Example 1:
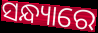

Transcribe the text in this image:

ସନ୍ଧ୍ୟାରେ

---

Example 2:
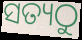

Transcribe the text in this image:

ସତ୍ୟଠୁ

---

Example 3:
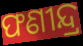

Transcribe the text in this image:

ଫଣୀନ୍ଦ୍ର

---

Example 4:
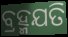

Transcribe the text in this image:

ବ୍ରହ୍ମଯତି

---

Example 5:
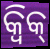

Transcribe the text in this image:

କ୍ୱିକ୍